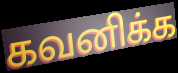
கவனிக்க